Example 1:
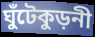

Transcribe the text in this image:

ঘুঁটেকুড়নী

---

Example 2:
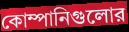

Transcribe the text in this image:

কোম্পানিগুলোর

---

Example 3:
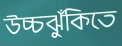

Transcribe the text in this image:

উচ্চঝুঁকিতে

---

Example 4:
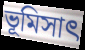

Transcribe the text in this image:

ভূমিসাৎ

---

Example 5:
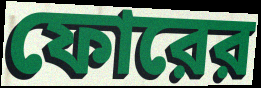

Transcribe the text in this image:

ফোরের